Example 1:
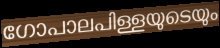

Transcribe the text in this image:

ഗോപാലപിള്ളയുടെയും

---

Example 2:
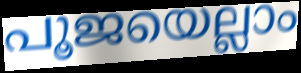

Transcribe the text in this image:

പൂജയെല്ലാം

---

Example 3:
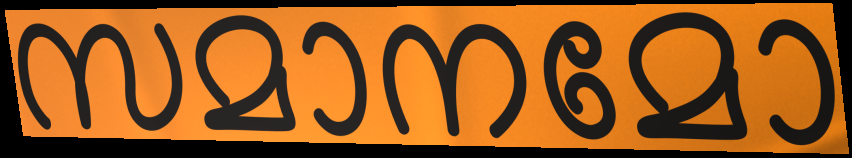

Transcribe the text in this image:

സമാനമോ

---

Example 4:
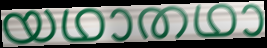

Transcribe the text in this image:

യഥാതഥാ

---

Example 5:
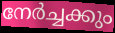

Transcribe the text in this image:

നേർച്ചക്കും